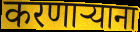
करणाऱ्याना